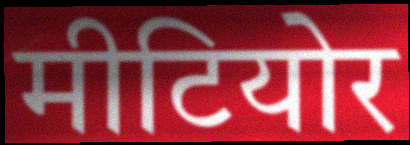
मीटियोर